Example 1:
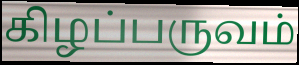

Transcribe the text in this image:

கிழப்பருவம்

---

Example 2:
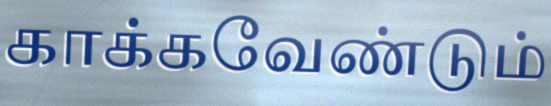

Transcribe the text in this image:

காக்கவேண்டும்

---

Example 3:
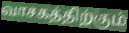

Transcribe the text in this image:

வாசகத்திற்கும்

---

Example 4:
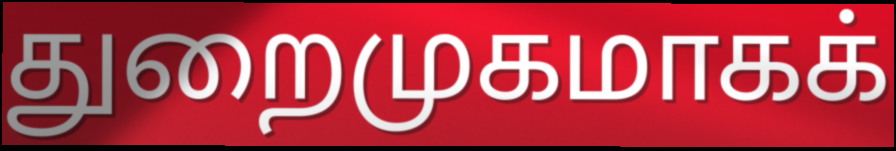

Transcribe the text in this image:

துறைமுகமாகக்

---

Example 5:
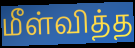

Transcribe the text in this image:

மீள்வித்த